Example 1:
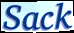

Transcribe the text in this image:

Sack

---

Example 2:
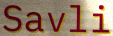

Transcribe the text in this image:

Savli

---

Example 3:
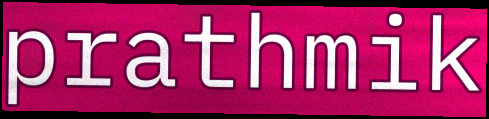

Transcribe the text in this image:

prathmik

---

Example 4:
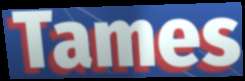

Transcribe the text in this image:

Tames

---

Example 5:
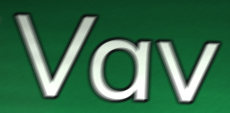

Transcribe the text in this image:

Vav